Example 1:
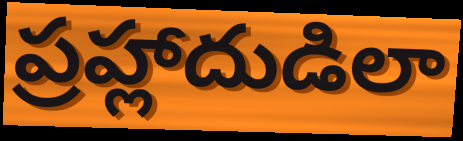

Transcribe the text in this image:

ప్రహ్లాదుడిలా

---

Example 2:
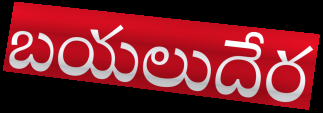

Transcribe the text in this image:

బయలుదేర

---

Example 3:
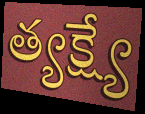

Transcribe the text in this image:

త్యక్ష్యే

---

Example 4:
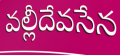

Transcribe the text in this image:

వల్లీదేవసేన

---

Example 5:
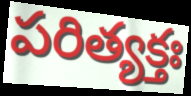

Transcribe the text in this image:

పరిత్యక్తః